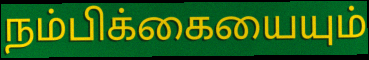
நம்பிக்கையையும்